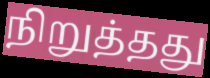
நிறுத்தது